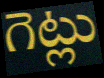
గెట్లు